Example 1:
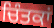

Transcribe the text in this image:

ਚਿੰਤਕਾਂ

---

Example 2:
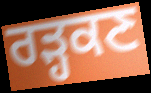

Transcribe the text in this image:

ਰੜ੍ਹਕਣ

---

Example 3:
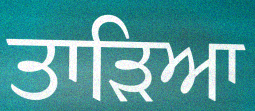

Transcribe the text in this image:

ਤਾੜਿਆ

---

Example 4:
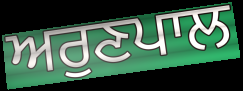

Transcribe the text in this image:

ਅਰੁਣਪਾਲ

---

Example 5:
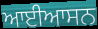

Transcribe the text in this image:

ਆਈਆਸਨ